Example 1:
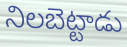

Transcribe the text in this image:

నిలబెట్టాడు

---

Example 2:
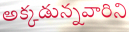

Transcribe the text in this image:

అక్కడున్నవారిని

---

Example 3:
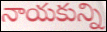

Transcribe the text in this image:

నాయకున్ని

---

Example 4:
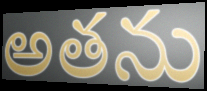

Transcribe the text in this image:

అతను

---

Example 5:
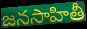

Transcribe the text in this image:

జనసాహితీ